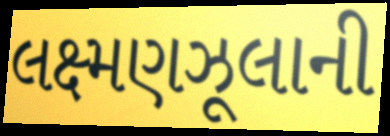
લક્ષ્મણઝૂલાની